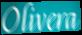
Olivera